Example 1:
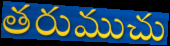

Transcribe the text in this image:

తరుముచు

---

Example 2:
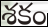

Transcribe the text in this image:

శకం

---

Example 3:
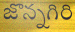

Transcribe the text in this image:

జొన్నగిరి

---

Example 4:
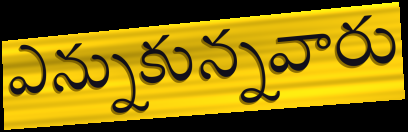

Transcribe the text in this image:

ఎన్నుకున్నవారు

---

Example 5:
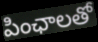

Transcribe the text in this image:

పింఛాలతో